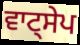
ਵਾਟ੍ਸੇਪ